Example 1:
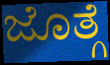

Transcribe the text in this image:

ಜೊತ್ಗೆ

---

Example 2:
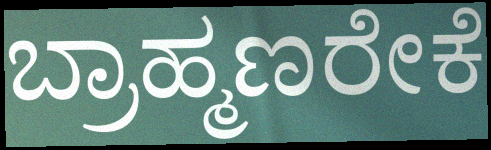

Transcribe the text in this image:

ಬ್ರಾಹ್ಮಣರೇಕೆ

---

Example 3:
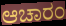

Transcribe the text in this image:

ಆಚಾರಂ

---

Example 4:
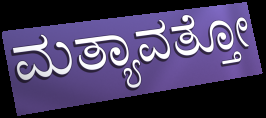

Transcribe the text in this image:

ಮತ್ಯಾವತ್ತೋ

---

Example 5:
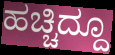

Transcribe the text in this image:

ಹಚ್ಚಿದ್ದೂ